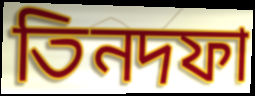
তিনদফা